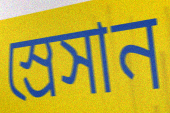
স্রেসান